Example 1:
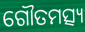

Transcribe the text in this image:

ଗୌତମତ୍ସ୍ୟ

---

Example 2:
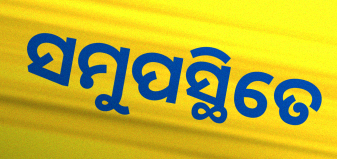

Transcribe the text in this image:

ସମୁପସ୍ଥିତେ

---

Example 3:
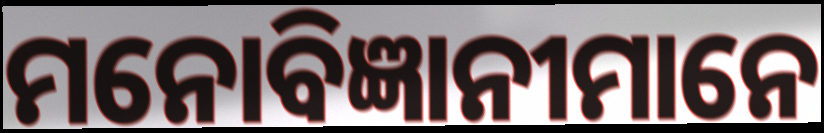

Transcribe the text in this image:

ମନୋବିଜ୍ଞାନୀମାନେ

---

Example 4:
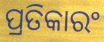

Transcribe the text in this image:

ପ୍ରତିକାରଂ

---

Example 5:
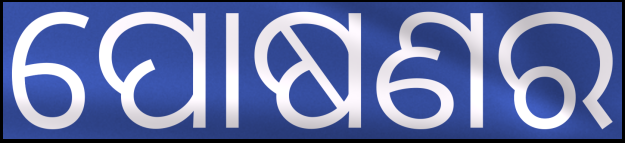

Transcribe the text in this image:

ପୋଷଣର